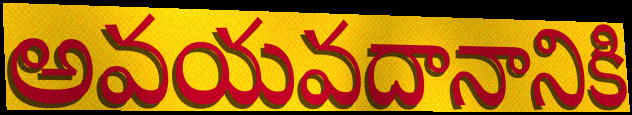
అవయవదానానికి